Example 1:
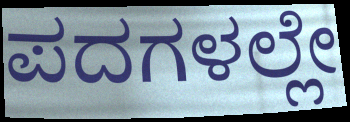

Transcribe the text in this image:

ಪದಗಳಲ್ಲೇ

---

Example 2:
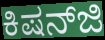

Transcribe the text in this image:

ಕಿಷನ್‌ಜಿ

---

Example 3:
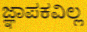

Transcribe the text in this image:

ಜ್ಞಾಪಕವಿಲ್ಲ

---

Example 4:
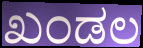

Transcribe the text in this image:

ಖಂಡಲ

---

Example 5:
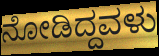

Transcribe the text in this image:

ನೋಡಿದ್ದವಳು